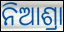
ନିଆଶ୍ରା